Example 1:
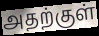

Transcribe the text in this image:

அதற்குள்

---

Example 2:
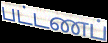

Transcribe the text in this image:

பட்டணப்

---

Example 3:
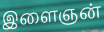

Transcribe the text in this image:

இளைஞன்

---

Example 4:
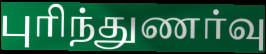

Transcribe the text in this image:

புரிந்துணர்வு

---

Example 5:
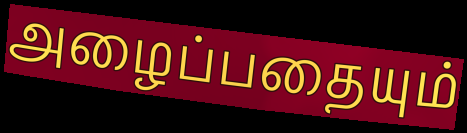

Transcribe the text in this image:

அழைப்பதையும்